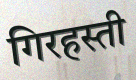
गिरहस्ती